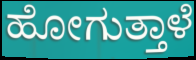
ಹೋಗುತ್ತಾಳೆ